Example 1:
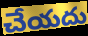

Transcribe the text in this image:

చేయదు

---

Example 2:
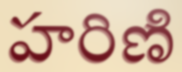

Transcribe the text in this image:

హరిణి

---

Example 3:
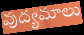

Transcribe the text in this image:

వుద్యమాలు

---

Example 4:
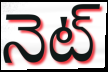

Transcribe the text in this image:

నెట్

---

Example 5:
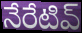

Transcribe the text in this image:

నేరేటివ్